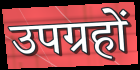
उपग्रहों